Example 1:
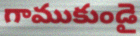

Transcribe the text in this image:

గాముకుండై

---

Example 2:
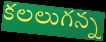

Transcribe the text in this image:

కలలుగన్న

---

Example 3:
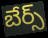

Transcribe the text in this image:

బేర్స్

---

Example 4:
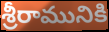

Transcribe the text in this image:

శ్రీరామునికి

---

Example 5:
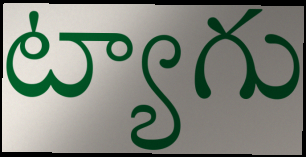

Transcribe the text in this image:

ట్యాగు